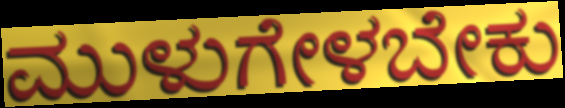
ಮುಳುಗೇಳಬೇಕು